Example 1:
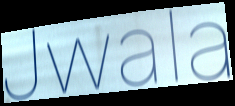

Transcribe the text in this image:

Jwala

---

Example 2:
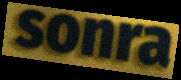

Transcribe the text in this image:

sonra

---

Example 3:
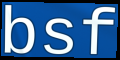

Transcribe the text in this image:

bsf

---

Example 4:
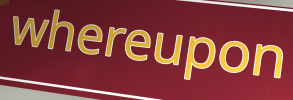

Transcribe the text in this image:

whereupon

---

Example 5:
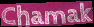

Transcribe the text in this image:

Chamak